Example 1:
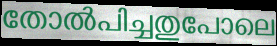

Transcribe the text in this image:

തോൽപിച്ചതുപോലെ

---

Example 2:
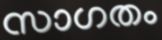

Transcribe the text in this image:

സാഗതം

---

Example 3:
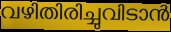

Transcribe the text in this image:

വഴിതിരിച്ചുവിടാൻ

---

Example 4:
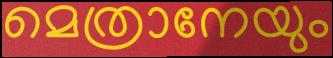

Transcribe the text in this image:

മെത്രാനേയും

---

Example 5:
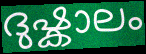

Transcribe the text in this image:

ദുഷ്കാലം